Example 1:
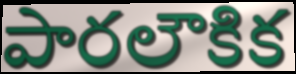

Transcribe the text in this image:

పారలౌకిక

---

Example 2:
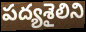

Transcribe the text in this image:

పద్యశైలిని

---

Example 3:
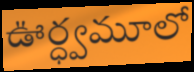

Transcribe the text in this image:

ఊర్ధ్వమూలో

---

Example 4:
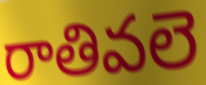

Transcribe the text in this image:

రాతివలె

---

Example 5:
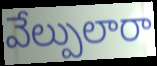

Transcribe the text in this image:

వేల్పులారా